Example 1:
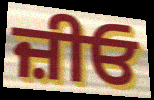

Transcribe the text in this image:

ਜ਼ੀਓ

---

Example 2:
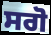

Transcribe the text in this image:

ਸਗੋ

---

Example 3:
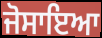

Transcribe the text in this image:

ਜੋਸਾਇਆ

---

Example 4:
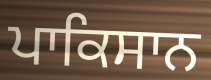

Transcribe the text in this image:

ਪਾਕਿਸਾਨ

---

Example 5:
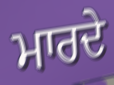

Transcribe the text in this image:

ਮਾਰਦੇ